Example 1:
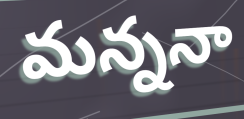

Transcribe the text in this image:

మన్ననా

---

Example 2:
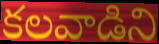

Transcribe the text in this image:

కలవాడిని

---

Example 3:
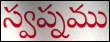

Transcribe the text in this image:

స్వప్నము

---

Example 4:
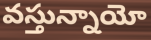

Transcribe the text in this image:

వస్తున్నాయో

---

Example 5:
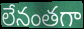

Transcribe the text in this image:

లేనంతగా